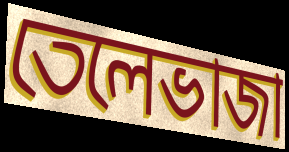
তেলেভাজা